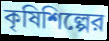
কৃষিশিল্পের